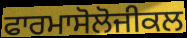
ਫਾਰਮਾਸੋਲੋਜੀਕਲ